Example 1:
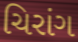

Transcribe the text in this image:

ચિરાંગ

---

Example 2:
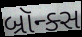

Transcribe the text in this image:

બ્રૉન્ક્સ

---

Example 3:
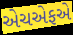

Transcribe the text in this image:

એચએફએ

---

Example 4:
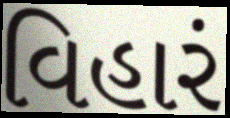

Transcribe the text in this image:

વિહારં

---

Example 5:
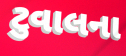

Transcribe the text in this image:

ટુવાલના